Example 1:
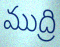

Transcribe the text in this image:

ముద్రి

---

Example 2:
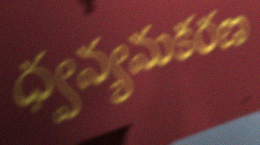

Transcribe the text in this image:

ధ్వన్యనుకరణ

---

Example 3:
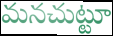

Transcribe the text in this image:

మనచుట్టూ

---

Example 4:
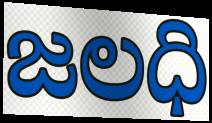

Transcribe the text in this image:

జలధి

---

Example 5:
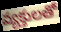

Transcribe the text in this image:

వ్యక్తులతో